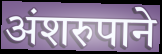
अंशरुपाने